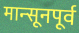
मान्सूनपूर्व